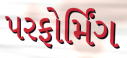
પરફોર્મિંગ